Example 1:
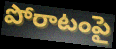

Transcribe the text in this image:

పోరాటంపై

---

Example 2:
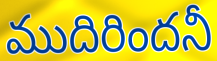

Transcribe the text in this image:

ముదిరిందనీ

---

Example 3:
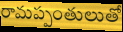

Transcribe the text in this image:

రామప్పంతులుతో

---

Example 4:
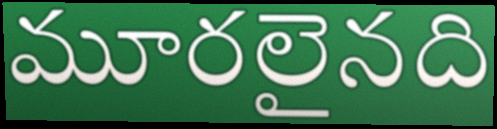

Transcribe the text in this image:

మూరలైనది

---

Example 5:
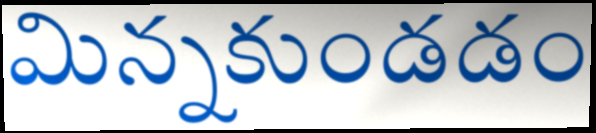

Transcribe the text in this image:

మిన్నకుండడం